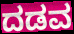
ದಡವ